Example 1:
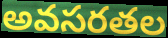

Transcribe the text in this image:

అవసరతల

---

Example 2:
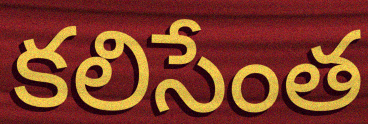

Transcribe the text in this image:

కలిసేంత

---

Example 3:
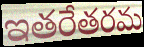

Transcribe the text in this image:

ఇతరేతరమ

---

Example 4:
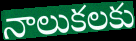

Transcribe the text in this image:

నాలుకలకు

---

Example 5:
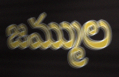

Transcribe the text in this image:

జమ్ముల